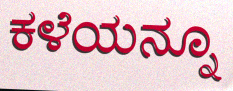
ಕಳೆಯನ್ನೂ